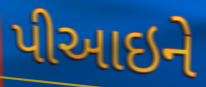
પીઆઇને